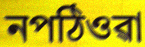
নপঠিওৱা